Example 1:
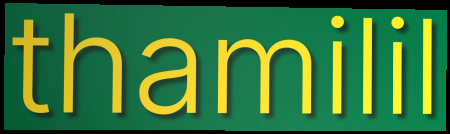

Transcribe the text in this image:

thamilil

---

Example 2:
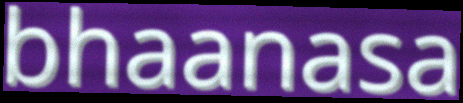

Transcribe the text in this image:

bhaanasa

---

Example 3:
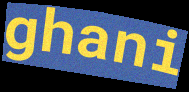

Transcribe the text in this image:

ghani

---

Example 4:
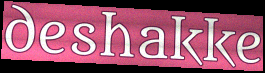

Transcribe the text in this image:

deshakke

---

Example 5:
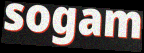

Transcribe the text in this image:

sogam